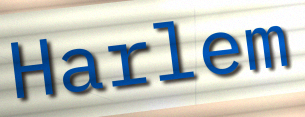
Harlem